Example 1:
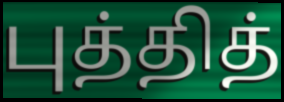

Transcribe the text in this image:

புத்தித்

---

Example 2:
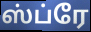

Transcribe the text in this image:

ஸ்ப்ரே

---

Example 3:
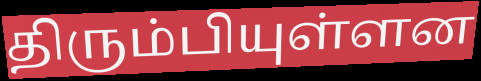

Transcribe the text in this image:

திரும்பியுள்ளன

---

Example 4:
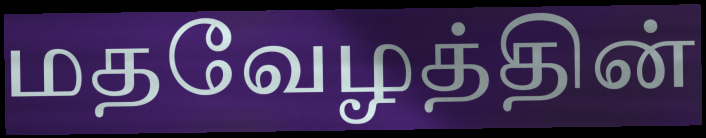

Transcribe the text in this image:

மதவேழத்தின்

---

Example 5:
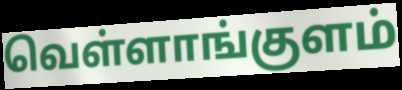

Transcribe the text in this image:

வெள்ளாங்குளம்